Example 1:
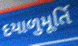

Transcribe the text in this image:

દયાળુમૂર્તિ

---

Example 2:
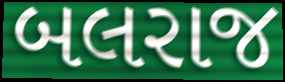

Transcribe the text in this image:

બલરાજ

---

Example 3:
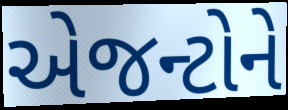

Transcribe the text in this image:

એજન્ટોને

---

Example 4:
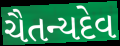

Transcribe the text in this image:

ચૈતન્યદેવ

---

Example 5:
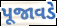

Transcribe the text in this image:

પૂજાવડે